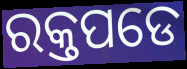
ରକ୍ତପଡେ